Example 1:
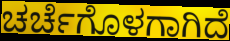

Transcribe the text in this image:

ಚರ್ಚೆಗೊಳಗಾಗಿದೆ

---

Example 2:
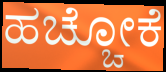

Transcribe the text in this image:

ಹಚ್ಚೋಕೆ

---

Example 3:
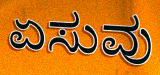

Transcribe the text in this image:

ಏಸುವು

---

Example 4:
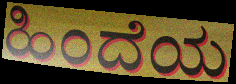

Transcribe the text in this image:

ಹಿಂದೆಯ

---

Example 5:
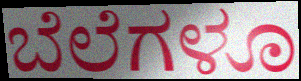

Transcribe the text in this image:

ಬೆಲೆಗಳೂ